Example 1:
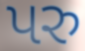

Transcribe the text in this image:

પરુ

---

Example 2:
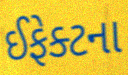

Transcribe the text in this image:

ઈફેક્ટના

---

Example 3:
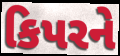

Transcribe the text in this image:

કિપરને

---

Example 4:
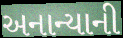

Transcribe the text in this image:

અનાન્યાની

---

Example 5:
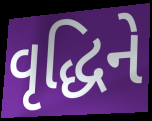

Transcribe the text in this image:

વૃદ્ધિને